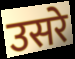
उसरे